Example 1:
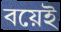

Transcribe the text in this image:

বয়েই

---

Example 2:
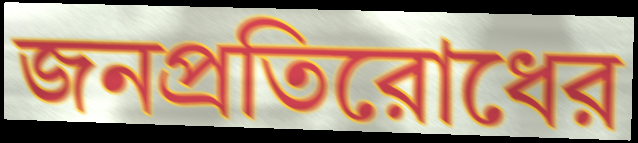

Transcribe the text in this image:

জনপ্রতিরোধের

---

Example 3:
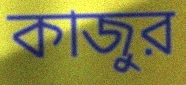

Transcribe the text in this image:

কাজুর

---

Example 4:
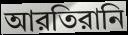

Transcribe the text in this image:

আরতিরানি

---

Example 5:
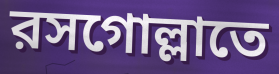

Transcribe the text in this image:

রসগোল্লাতে